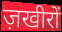
ज़खीरों